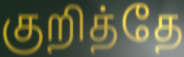
குறித்தே